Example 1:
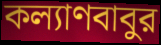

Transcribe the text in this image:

কল্যাণবাবুর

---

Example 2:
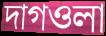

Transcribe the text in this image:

দাগওলা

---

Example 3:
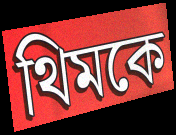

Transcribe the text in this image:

থিমকে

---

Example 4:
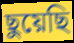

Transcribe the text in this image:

ছুয়েছি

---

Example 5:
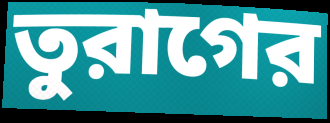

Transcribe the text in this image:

তুরাগের